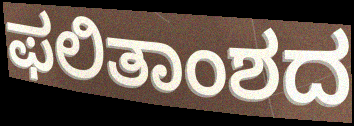
ಫಲಿತಾಂಶದ